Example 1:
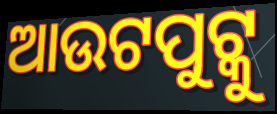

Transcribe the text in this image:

ଆଉଟପୁଟ୍କୁ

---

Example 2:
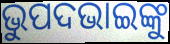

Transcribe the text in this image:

ଭୁପଦଭାଇଙ୍କୁ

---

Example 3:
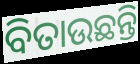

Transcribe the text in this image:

ବିତାଉଛନ୍ତି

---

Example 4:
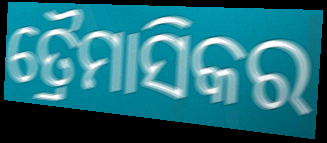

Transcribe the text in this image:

ତ୍ରୈମାସିକର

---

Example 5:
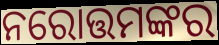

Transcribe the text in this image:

ନରୋତ୍ତମଙ୍କର